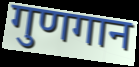
गुणगान